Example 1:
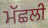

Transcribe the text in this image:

ਮੱਛਲੀ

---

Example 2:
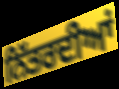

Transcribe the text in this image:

ਨਿੱਤਰਦੀਆਂ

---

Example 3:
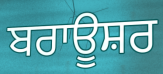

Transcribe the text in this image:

ਬਰਾਊਸ਼ਰ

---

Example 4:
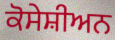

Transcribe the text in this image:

ਕੋਸੇਸ਼ੀਅਨ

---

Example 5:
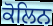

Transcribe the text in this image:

ਕੋਲਿਨ